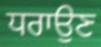
ਧਰਾਉਣ